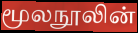
மூலநூலின்